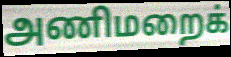
அணிமறைக்